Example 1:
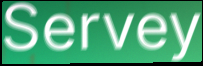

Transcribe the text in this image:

Servey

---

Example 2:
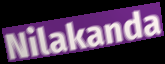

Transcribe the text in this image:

Nilakanda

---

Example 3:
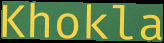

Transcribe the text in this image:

Khokla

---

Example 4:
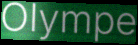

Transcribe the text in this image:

Olympe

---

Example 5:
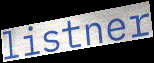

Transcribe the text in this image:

listner